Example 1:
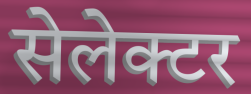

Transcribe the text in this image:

सेलेक्‍टर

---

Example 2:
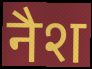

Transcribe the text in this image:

नैश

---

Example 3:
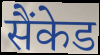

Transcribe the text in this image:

सैंकेड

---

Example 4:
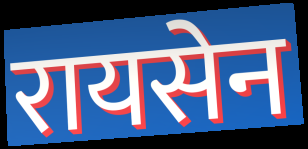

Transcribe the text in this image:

रायसेन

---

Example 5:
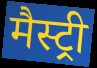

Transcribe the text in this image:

मैस्ट्री